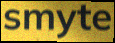
smyte